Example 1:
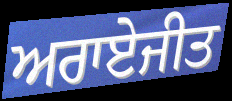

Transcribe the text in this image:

ਅਰਾਏਜੀਤ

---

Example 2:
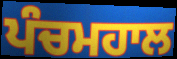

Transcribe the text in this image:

ਪੰਚਮਹਾਲ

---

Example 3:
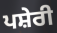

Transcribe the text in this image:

ਪਸ਼ੇਰੀ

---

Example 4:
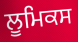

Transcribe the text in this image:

ਲੂਮਿਕਸ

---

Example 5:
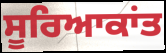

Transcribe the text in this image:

ਸੂਰਿਆਕਾਂਤ